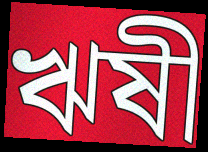
ঋষী